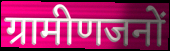
ग्रामीणजनों